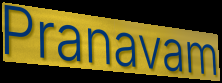
Pranavam